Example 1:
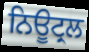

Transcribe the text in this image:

ਨਿਊਟ੍ਰਲ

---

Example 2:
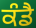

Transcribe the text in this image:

ਕੰਡੈ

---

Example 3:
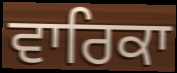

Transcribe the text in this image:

ਵਾਰਿਕਾ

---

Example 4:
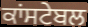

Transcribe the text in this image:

ਕਾਂਸਟੇਬਲ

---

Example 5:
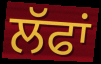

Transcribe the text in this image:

ਲੱਫਾਂ